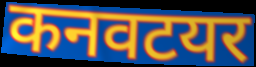
कनवटयर